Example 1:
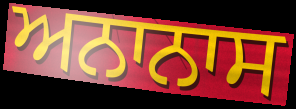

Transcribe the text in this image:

ਅਨਾਨਾਸ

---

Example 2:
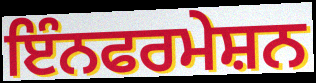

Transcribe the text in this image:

ਇੰਨਫਰਮੇਸ਼ਨ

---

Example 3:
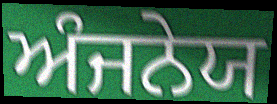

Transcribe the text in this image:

ਅੰਜਨੇਯ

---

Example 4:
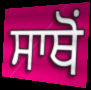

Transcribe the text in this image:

ਸਾਥੋਂ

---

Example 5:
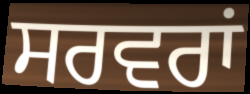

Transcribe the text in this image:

ਸਰਵਰਾਂ